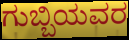
ಗುಬ್ಬಿಯವರ